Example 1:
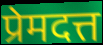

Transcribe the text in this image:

प्रेमदत्त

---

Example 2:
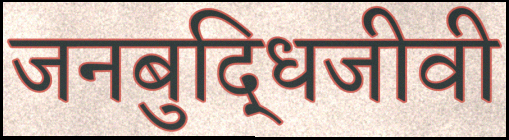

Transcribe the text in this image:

जनबुद्धिजीवी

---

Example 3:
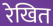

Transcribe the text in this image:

रेखित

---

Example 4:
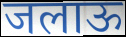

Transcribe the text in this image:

जलाऊ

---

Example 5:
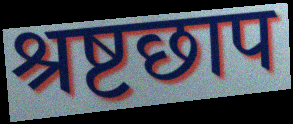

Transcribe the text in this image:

श्रष्टछाप